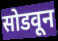
सोडवून